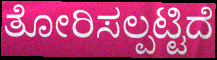
ತೋರಿಸಲ್ಪಟ್ಟಿದೆ